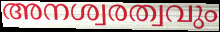
അനശ്വരത്വവും